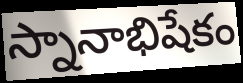
స్నానాభిషేకం